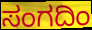
ಸಂಗದಿಂ